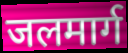
जलमार्ग